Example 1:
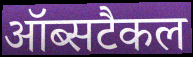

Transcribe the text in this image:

ऑब्सटैकल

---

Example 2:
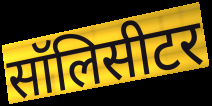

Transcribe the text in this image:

सॉलिसीटर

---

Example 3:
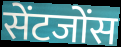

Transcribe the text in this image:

सेंटजोंस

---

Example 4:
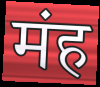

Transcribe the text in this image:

मंह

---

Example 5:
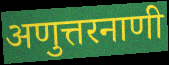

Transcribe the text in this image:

अणुत्तरनाणी